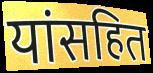
यांसहित